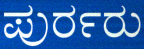
ಪುರ್ರರು